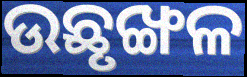
ଉଛୃଙ୍ଖଳ